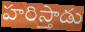
హరిస్తాడు